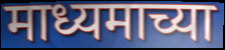
माध्यमाच्या